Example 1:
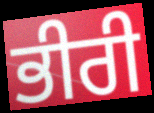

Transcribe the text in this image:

ਭੀਰੀ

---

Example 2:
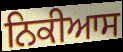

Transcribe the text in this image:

ਨਿਕੀਆਸ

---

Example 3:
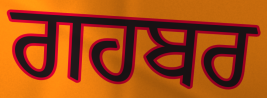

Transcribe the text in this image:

ਗਹਬਰ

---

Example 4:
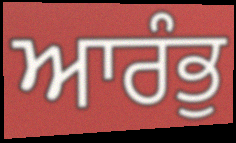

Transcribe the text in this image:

ਆਰੰਭੁ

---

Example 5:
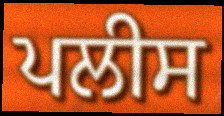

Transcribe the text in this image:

ਪਲੀਸ